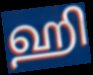
ஹி